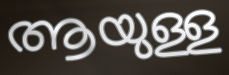
ആയുള്ള